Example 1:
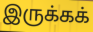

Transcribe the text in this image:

இருக்கக்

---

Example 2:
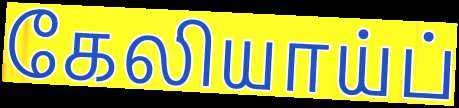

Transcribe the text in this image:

கேலியாய்ப்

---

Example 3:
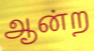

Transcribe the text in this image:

ஆன்ற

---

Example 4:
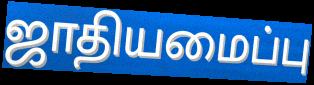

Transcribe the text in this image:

ஜாதியமைப்பு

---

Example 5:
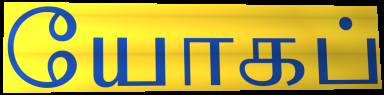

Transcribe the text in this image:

யோகப்